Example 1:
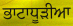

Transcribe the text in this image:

ਭਾਟਾਧੂੜੀਆ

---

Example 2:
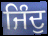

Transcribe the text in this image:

ਜਿੰਦੁ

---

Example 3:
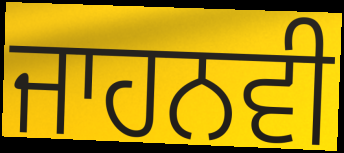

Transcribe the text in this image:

ਜਾਹਨਵੀ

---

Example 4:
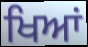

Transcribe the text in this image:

ਖਿਆਂ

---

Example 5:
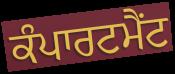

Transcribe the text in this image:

ਕੰਪਾਰਟਮੈਂਟ